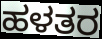
ಹಳತರ